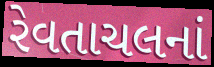
રેવતાચલનાં